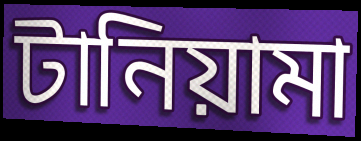
টানিয়ামা